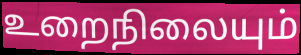
உறைநிலையும்